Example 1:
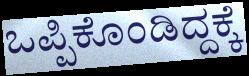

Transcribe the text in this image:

ಒಪ್ಪಿಕೊಂಡಿದ್ದಕ್ಕೆ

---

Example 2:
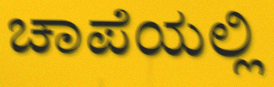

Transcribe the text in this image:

ಚಾಪೆಯಲ್ಲಿ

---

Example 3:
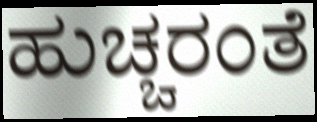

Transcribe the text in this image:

ಹುಚ್ಚರಂತೆ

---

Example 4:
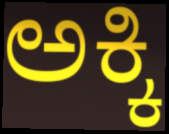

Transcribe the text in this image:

ಅಕ್ಕಿ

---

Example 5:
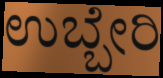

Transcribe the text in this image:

ಉಬ್ಬೇರಿ